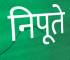
निपूते